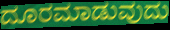
ದೂರಮಾಡುವುದು